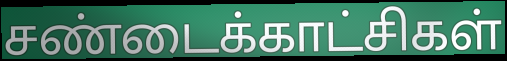
சண்டைக்காட்சிகள்